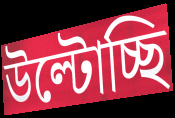
উল্টোচ্ছি